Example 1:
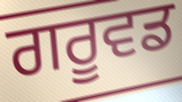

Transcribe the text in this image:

ਗਰੂਵਡ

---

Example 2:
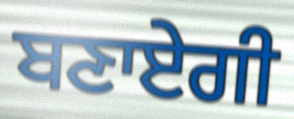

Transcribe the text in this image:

ਬਣਾਏਗੀ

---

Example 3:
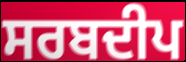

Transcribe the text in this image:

ਸਰਬਦੀਪ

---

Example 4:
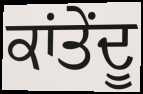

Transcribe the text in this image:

ਕਾਂਤੇਂਦੂ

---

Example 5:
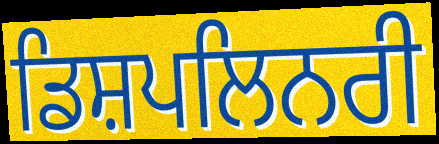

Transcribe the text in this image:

ਡਿਸ਼ਪਲਿਨਰੀ